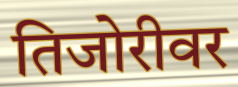
तिजोरीवर